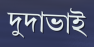
দুদাভাই